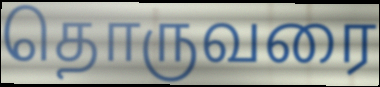
தொருவரை